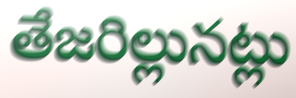
తేజరిల్లునట్లు